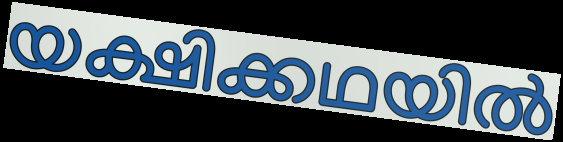
യക്ഷിക്കഥയിൽ